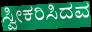
ಸ್ವೀಕರಿಸಿದವ